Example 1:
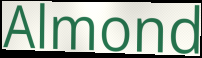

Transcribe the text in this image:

Almond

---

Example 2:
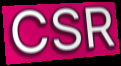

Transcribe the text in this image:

CSR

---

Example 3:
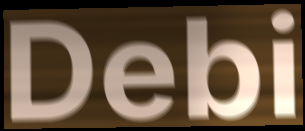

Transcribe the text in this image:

Debi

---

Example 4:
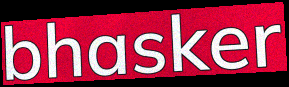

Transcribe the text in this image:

bhasker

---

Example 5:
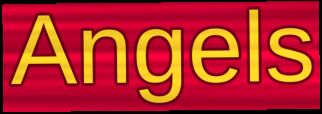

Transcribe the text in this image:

Angels